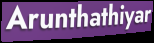
Arunthathiyar